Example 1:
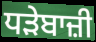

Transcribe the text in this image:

ਧੜੇਬਾਜ਼ੀ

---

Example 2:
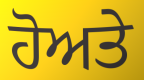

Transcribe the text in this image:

ਹੋਅਤੇ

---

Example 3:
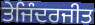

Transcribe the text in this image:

ਤੇਜਿੰਦਰਜੀਤ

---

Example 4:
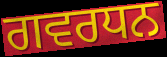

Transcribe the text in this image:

ਗਵਰਧਨ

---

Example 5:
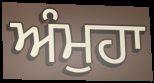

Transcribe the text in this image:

ਅੰਮੁਹਾ